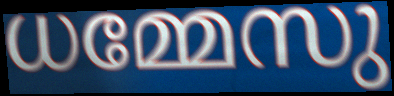
ധമ്മേസു